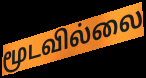
மூடவில்லை